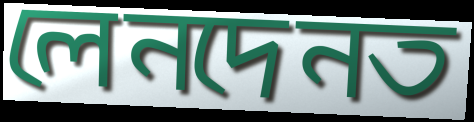
লেনদেনত